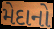
મેદાનો